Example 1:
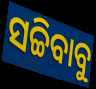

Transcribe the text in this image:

ସଚ୍ଚିବାବୁ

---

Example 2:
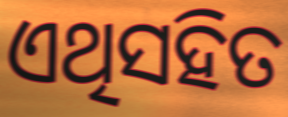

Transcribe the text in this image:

ଏଥିସହିତ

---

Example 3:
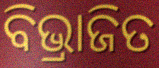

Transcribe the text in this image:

ବିଭ୍ରାଜିତ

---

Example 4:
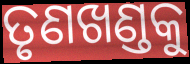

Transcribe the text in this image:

ତୃଣଖଣ୍ଡକୁ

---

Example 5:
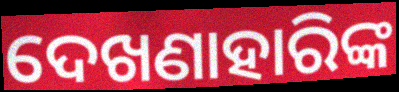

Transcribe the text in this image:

ଦେଖଣାହାରିଙ୍କ